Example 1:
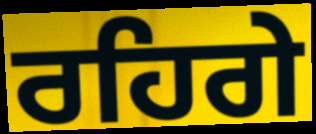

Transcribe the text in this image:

ਰਹਿਗੇ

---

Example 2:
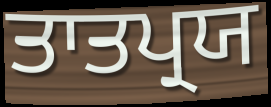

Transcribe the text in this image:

ਤਾਤਪ੍ਰਯ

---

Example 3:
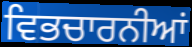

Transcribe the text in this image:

ਵਿਭਚਾਰਨੀਆਂ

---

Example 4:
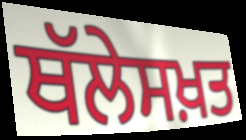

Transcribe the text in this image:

ਥੱਲੇਸਖ਼ਤ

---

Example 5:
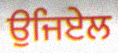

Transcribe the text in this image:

ਉਜਿਏਲ